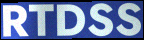
RTDSS